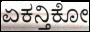
ಏಕನ್ತಿಕೋ